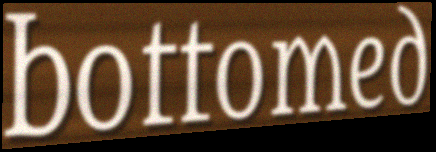
bottomed